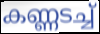
കണ്ണടച്ച്